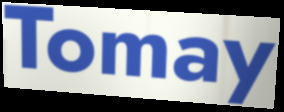
Tomay